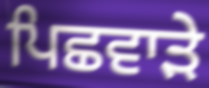
ਪਿਛਵਾੜੇ